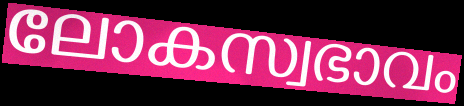
ലോകസ്വഭാവം